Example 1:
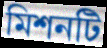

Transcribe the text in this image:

মিশনটি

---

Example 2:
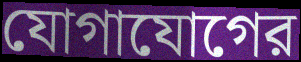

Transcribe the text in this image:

যোগাযোগের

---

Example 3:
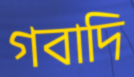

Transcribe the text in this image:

গবাদি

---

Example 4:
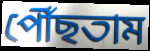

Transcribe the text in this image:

পৌঁছতাম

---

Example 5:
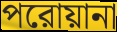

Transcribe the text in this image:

পরোয়ানা